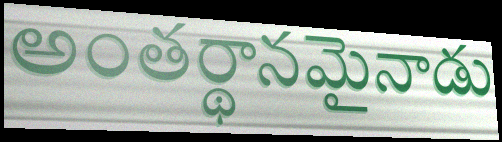
అంతర్థానమైనాడు